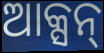
ଆକ୍ସନ୍